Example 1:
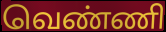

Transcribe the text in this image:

வெண்ணி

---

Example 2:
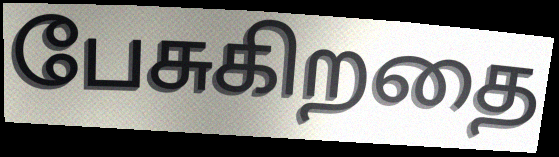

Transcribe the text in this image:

பேசுகிறதை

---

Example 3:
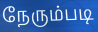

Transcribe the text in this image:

நேரும்படி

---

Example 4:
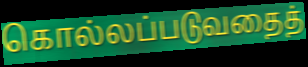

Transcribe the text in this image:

கொல்லப்படுவதைத்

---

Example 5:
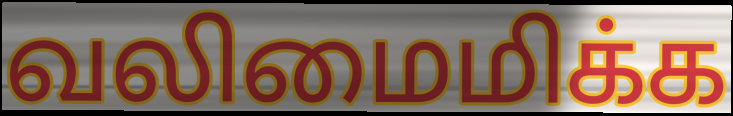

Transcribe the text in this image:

வலிமைமிக்க